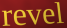
revel